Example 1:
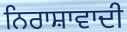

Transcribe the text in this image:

ਨਿਰਾਸ਼ਾਵਾਦੀ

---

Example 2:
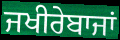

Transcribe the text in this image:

ਜਖੀਰੇਬਾਜਾਂ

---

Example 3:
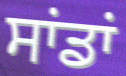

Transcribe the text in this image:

ਸਾਂਡਾਂ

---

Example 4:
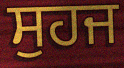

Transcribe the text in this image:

ਸੁਹਜ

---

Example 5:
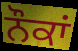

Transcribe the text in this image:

ਨੌਕਾਂ